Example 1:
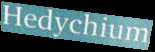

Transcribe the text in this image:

Hedychium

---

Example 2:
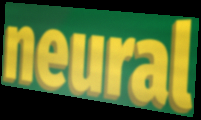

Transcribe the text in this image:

neural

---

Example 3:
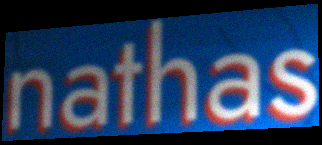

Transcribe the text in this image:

nathas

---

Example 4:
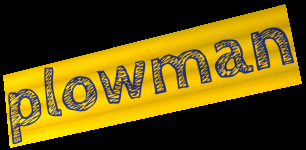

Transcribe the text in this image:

plowman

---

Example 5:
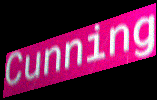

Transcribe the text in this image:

Cunning